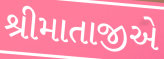
શ્રીમાતાજીએ